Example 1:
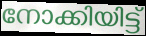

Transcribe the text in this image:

നോക്കിയിട്ട്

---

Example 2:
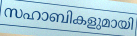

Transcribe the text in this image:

സഹാബികളുമായി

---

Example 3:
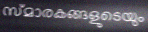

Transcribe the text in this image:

സ്മാരകങ്ങളുടെയും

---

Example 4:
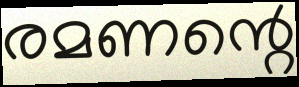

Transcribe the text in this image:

രമണന്റെ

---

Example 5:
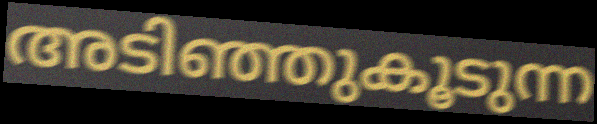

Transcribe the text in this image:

അടിഞ്ഞുകൂടുന്ന